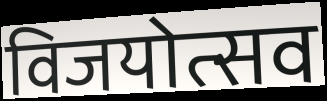
विजयोत्सव